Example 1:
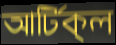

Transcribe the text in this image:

আর্টিক্‌ল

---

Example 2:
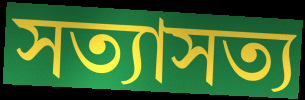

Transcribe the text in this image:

সত্যাসত্য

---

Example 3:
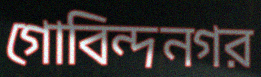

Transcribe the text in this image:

গোবিন্দনগর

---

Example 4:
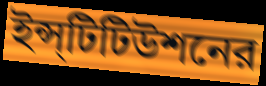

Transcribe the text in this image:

ইন্স্টিটিউশনের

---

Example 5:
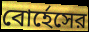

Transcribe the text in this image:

বোর্হেসের